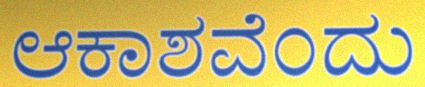
ಆಕಾಶವೆಂದು